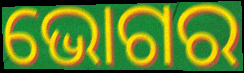
ଭୋଗର